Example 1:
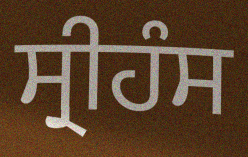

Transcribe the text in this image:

ਸ੍ਰੀਹੰਸ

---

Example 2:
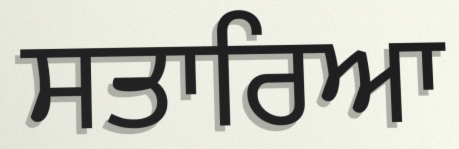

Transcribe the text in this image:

ਸਤਾਰਿਆ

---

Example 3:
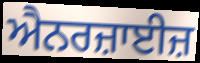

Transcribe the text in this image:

ਐਨਰਜ਼ਾਈਜ਼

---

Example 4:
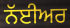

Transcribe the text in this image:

ਨੱਈਅਰ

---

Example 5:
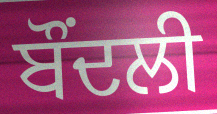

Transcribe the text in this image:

ਬੌਂਦਲੀ